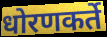
धोरणकर्ते